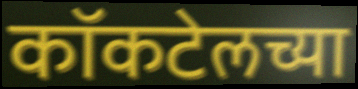
कॉकटेलच्या